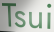
Tsui